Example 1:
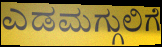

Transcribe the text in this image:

ಎಡಮಗ್ಗುಲಿಗೆ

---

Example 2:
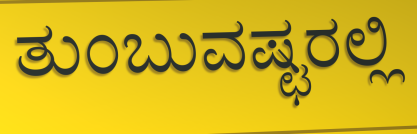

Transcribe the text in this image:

ತುಂಬುವಷ್ಟರಲ್ಲಿ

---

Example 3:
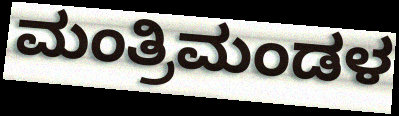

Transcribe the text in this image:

ಮಂತ್ರಿಮಂಡಳ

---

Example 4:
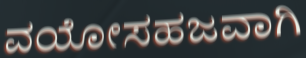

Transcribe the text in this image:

ವಯೋಸಹಜವಾಗಿ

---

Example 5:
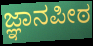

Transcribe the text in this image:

ಜ್ಞಾನಪೀಠ